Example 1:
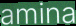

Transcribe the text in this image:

amina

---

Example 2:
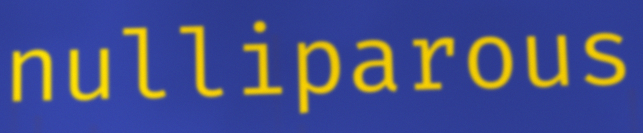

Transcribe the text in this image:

nulliparous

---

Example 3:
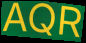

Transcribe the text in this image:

AQR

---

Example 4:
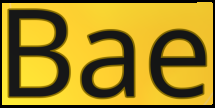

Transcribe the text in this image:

Bae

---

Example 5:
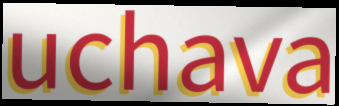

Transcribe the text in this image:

uchava